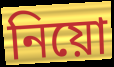
নিয়ো